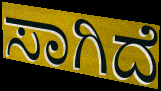
ಸಾಗಿದೆ